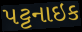
પટ્ટનાઇક